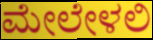
ಮೇಲೇಳಲಿ